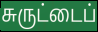
சுருட்டைப்